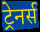
ट्रेनर्स